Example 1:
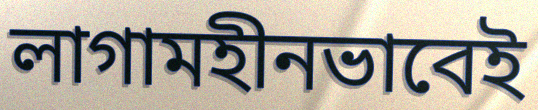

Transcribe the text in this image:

লাগামহীনভাবেই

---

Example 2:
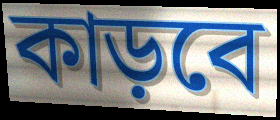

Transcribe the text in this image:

কাড়বে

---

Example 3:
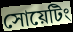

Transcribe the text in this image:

সোয়েটিং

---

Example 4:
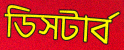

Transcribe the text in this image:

ডিসটার্ব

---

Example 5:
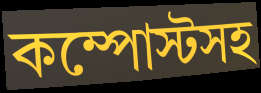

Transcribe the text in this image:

কম্পোস্টসহ